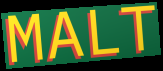
MALT